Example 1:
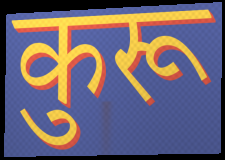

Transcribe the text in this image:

कुरू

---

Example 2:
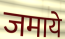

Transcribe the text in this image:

जमाये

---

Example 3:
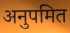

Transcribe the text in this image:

अनुपमित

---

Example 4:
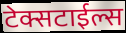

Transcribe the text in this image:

टेक्सटाईल्स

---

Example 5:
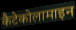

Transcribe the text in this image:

कैटेकोलामाइन